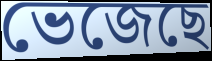
ভেজেছে